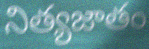
నిత్యజాతం